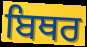
ਬਿਥਰ